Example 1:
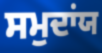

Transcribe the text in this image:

ਸਮੁਦਾਂਯ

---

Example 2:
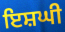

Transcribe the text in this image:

ਇਸ਼ਘੀ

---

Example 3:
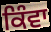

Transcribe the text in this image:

ਕਿੰਵਾ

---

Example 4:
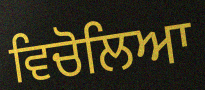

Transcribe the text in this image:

ਵਿਚੋਲਿਆ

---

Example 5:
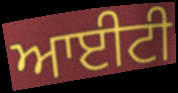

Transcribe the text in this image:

ਆਈਟੀ